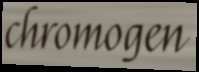
chromogen